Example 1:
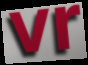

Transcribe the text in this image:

vr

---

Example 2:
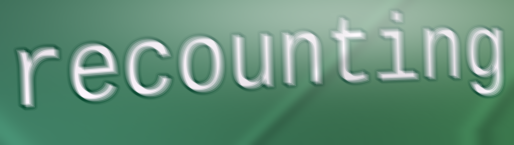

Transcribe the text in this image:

recounting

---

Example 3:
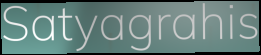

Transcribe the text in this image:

Satyagrahis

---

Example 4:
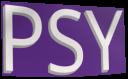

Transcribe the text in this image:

PSY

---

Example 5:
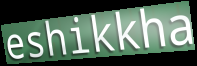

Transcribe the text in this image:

eshikkha